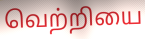
வெற்றியை